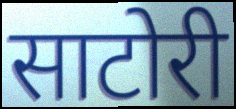
साटोरी